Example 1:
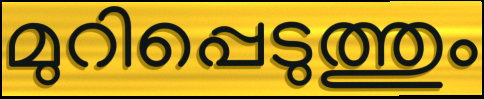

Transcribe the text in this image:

മുറിപ്പെടുത്തും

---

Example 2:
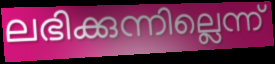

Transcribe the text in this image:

ലഭിക്കുന്നില്ലെന്ന്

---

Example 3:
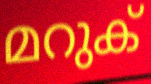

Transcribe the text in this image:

മറുക്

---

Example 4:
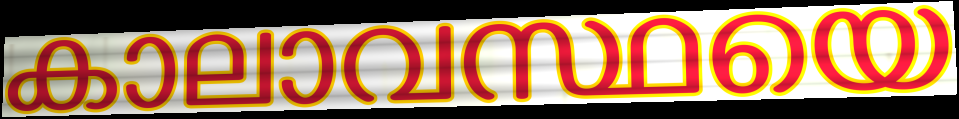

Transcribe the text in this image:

കാലാവസ്ഥയെ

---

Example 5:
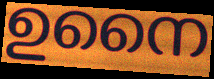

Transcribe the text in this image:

ഉനൈ